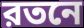
রতনে